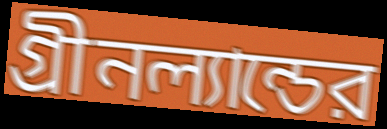
গ্রীনল্যান্ডের